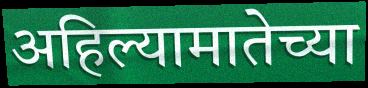
अहिल्यामातेच्या